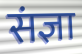
संज्ञा